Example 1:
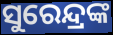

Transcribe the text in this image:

ସୁରେନ୍ଦ୍ରଙ୍କ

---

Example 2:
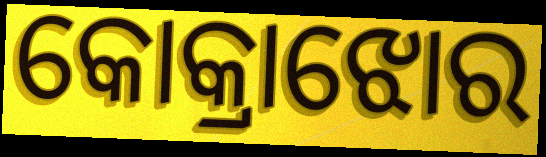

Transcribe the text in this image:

କୋକ୍ରାଝୋର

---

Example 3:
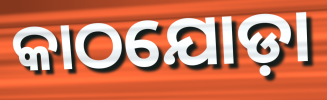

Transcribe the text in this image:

କାଠଯୋଡ଼ା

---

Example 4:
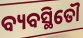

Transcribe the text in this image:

ବ୍ୟବସ୍ଥିତୌ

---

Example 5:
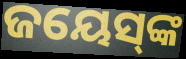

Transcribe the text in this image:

ଜୟେସ୍‌ଙ୍କ